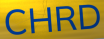
CHRD